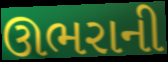
ઊભરાની